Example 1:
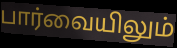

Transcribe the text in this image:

பார்வையிலும்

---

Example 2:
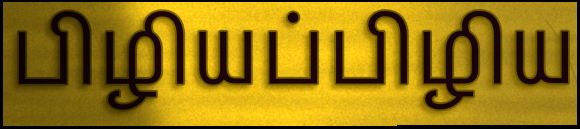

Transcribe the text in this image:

பிழியப்பிழிய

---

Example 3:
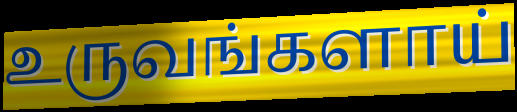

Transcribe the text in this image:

உருவங்களாய்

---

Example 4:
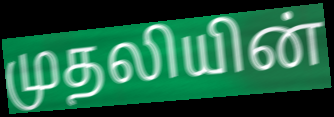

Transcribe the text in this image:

முதலியின்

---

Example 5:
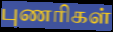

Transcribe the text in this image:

புணரிகள்